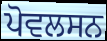
ਪੋਵਲਸਨ